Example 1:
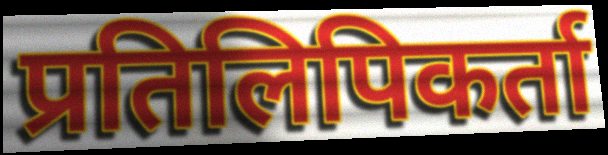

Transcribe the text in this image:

प्रतिलिपिकर्ता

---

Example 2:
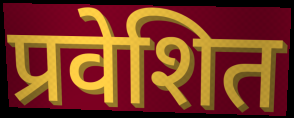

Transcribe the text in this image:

प्रवेशित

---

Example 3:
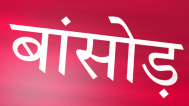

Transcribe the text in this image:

बांसोड़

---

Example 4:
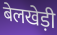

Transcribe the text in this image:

बेलखेड़ी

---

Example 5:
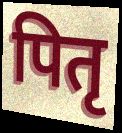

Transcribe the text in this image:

पितृ